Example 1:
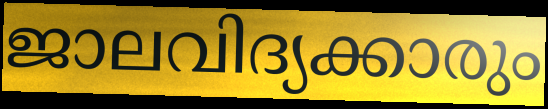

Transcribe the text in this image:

ജാലവിദ്യക്കാരും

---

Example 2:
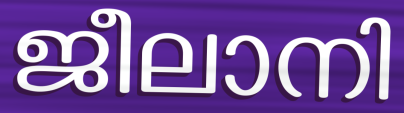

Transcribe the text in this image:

ജീലാനി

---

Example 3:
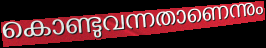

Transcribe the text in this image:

കൊണ്ടുവന്നതാണെന്നും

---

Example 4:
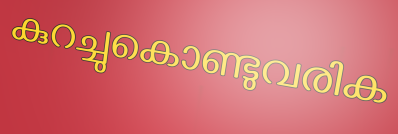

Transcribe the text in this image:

കുറച്ചുകൊണ്ടുവരിക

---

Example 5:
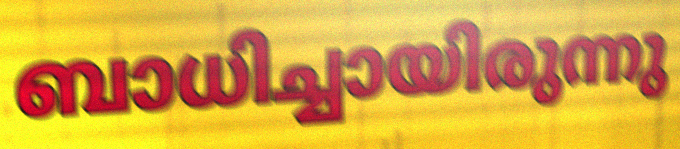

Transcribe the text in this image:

ബാധിച്ചായിരുന്നു